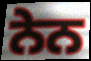
ਨੇਨ